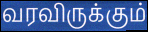
வரவிருக்கும்